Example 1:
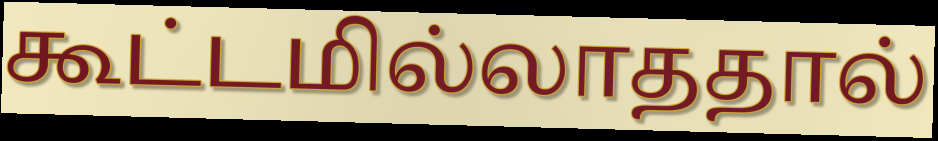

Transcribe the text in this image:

கூட்டமில்லாததால்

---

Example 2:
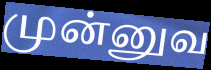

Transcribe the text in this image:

முன்னுவ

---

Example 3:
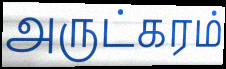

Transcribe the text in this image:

அருட்கரம்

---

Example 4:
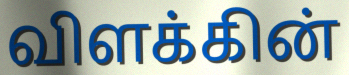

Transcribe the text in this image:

விளக்கின்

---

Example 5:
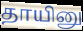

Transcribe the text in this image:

தாயினு